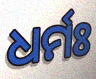
ଧର୍ମଃ